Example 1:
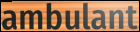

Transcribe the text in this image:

ambulant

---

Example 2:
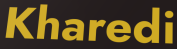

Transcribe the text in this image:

Kharedi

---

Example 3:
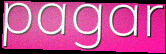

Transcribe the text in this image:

pagar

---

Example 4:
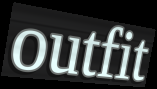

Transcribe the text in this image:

outfit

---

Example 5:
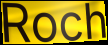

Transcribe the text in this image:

Roch